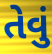
તેવું